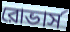
রোভার্স